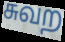
சுவற